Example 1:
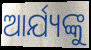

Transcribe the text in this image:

ଆର୍ଯ୍ୟଙ୍କୁ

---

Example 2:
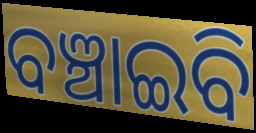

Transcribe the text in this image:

ବଞ୍ଚାଇବି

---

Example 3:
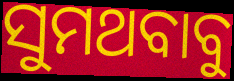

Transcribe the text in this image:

ସୁମଥବାବୁ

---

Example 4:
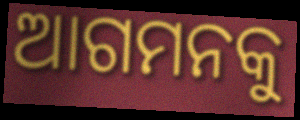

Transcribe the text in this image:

ଆଗମନକୁ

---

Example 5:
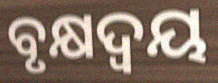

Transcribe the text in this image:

ବୃକ୍ଷଦ୍ୱୟ